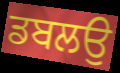
ਡਬਲਉ